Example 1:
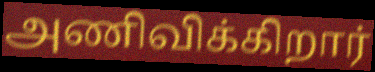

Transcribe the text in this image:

அணிவிக்கிறார்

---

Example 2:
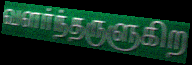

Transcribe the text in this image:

வளர்ந்தருளுகிற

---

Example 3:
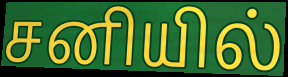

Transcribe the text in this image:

சனியில்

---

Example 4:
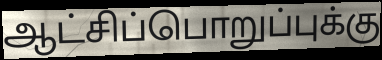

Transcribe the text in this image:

ஆட்சிப்பொறுப்புக்கு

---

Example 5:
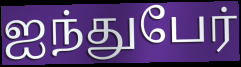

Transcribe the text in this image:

ஐந்துபேர்